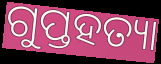
ଗୁପ୍ତହତ୍ୟା